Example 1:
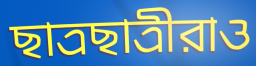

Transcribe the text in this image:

ছাত্রছাত্রীরাও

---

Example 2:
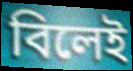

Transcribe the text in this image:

বিলেই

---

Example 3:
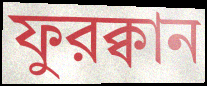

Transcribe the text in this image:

ফুরক্বান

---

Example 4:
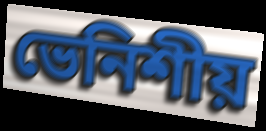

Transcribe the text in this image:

ভেনিশীয়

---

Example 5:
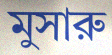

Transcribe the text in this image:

মুসারু